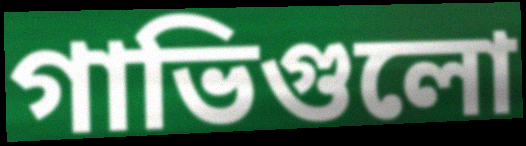
গাভিগুলো